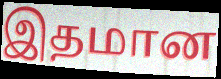
இதமான